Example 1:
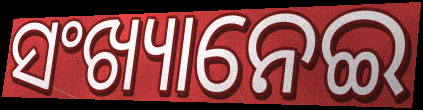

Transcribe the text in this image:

ସଂଖ୍ୟାନେଇ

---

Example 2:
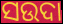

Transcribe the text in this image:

ସଉଦା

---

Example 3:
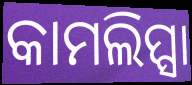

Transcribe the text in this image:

କାମଲିପ୍ସା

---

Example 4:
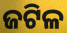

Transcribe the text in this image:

ଜଟିଳ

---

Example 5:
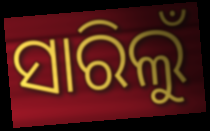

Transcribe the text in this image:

ସାରିଲୁଁ